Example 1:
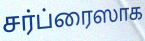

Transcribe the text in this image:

சர்ப்ரைஸாக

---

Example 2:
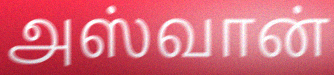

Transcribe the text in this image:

அஸ்வான்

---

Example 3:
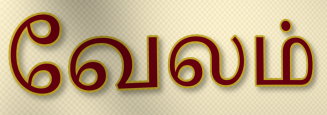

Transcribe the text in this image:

வேலம்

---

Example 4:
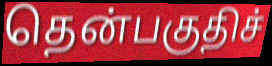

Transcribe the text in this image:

தென்பகுதிச்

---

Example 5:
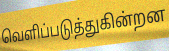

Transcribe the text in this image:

வெளிப்படுத்துகின்றன